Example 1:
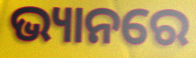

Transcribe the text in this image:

ଭ୍ୟାନରେ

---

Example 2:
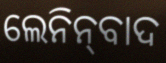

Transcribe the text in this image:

ଲେନିନ୍‌ବାଦ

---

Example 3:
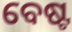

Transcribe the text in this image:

ବେଷ୍ଟ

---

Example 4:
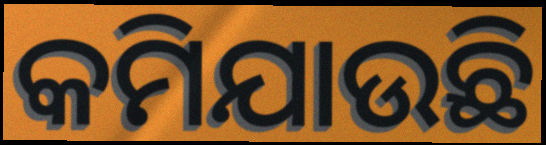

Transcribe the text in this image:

କମିଯାଉଛି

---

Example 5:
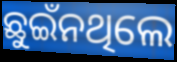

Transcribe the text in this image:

ଛୁଇଁନଥିଲେ